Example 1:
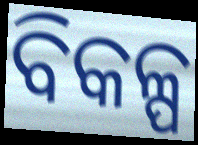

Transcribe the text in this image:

ବିକଳ୍ପ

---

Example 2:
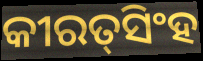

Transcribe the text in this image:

କୀରତ୍‍ସିଂହ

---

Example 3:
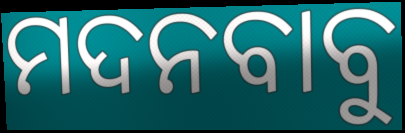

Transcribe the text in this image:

ମଦନବାବୁ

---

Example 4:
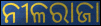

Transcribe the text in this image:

ନୀଳରାଜା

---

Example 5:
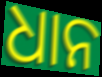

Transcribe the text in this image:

ଧାନ